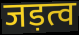
जड़त्व